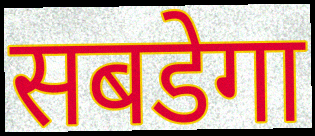
सबडेगा